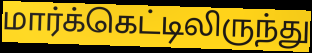
மார்க்கெட்டிலிருந்து